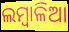
ଲମ୍ବାଳିଆ